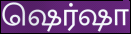
ஷெர்ஷா